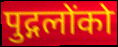
पुद्गलोंको